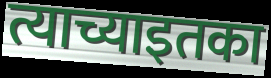
त्याच्याइतका